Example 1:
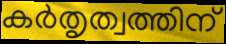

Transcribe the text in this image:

കർതൃത്വത്തിന്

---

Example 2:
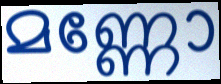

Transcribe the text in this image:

മണ്ണോ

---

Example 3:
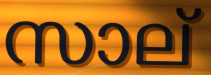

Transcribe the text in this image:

സാല്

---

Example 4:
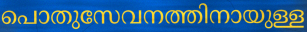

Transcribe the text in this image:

പൊതുസേവനത്തിനായുള്ള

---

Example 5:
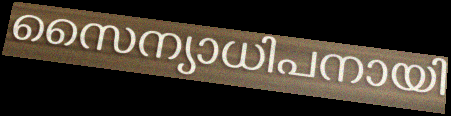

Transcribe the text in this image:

സൈന്യാധിപനായി